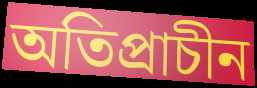
অতিপ্রাচীন